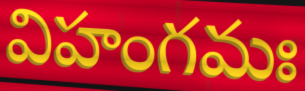
విహంగమః